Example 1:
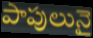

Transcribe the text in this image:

పాపులునై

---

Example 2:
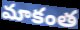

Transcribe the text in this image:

మాకంత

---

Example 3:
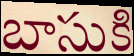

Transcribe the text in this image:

బాసుకి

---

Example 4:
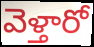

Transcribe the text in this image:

వెళ్తారో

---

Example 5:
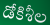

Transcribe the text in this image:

డోకిశీల